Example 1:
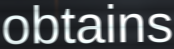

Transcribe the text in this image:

obtains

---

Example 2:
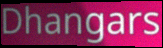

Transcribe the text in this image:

Dhangars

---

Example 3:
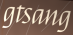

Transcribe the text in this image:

gtsang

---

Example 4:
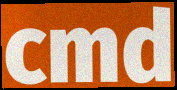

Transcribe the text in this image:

cmd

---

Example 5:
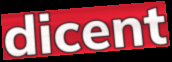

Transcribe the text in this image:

dicent